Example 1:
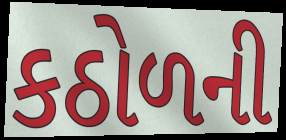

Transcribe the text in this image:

કઠોળની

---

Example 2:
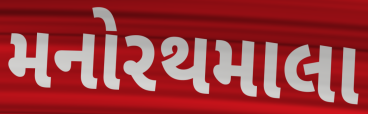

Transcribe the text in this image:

મનોરથમાલા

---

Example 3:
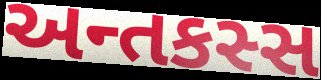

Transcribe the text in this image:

અન્તકસ્સ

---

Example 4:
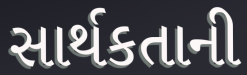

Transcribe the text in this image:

સાર્થકતાની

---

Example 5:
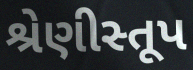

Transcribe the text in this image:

શ્રેણીસ્તૂપ